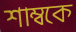
শাম্বকে